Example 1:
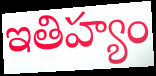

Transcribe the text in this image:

ఇతిహ్యం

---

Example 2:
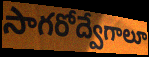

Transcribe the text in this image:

సాగరోద్వేగాలూ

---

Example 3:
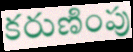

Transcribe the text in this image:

కరుణింపు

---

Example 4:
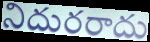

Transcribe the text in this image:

నిదురరాదు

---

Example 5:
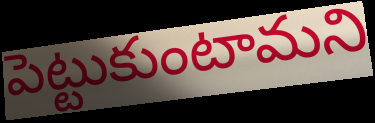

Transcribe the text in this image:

పెట్టుకుంటామని